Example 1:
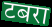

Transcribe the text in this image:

टबरा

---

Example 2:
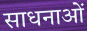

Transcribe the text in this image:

साधनाओं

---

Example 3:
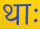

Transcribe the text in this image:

थाः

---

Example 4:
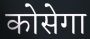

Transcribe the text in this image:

कोसेगा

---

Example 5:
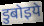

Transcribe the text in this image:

डुबोइये